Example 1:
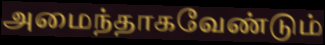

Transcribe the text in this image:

அமைந்தாகவேண்டும்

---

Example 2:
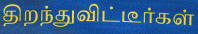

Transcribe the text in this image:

திறந்துவிட்டீர்கள்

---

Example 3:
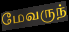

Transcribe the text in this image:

மேவருந்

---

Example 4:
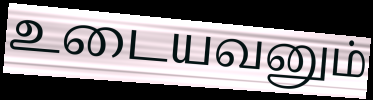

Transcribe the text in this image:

உடையவனும்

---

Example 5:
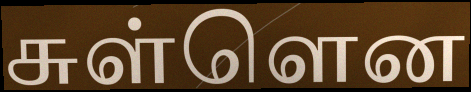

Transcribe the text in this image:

சுள்ளென